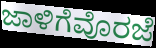
ಜಾಳಿಗೆವೊರಜೆ